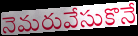
నెమరువేసుకొనే